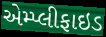
એમ્પ્લીફાઇડ